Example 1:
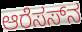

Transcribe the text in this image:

ಆರೆಸಸ್‌ನ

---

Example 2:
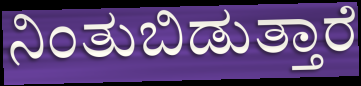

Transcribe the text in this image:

ನಿಂತುಬಿಡುತ್ತಾರೆ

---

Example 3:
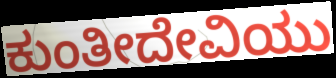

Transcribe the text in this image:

ಕುಂತೀದೇವಿಯು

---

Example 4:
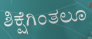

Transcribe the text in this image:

ಶಿಕ್ಷೆಗಿಂತಲೂ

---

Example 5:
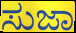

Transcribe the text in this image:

ಸುಜಾ